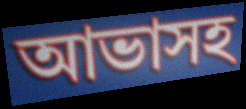
আভাসহ